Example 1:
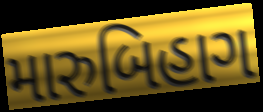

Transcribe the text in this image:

મારુબિહાગ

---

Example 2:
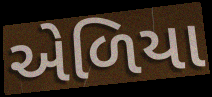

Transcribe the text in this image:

એળિયા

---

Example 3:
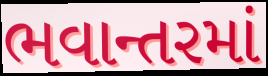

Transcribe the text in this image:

ભવાન્તરમાં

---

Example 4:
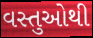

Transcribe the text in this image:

વસ્તુઓથી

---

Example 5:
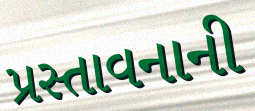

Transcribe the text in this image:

પ્રસ્તાવનાની